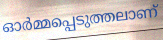
ഓർമ്മപ്പെടുത്തലാണ്